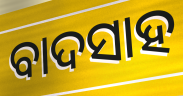
ବାଦସାହ